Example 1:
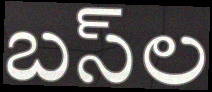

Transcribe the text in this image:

బస్‌ల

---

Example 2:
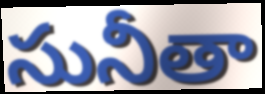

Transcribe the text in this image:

సునీతా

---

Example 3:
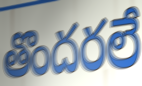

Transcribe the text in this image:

తొందరలే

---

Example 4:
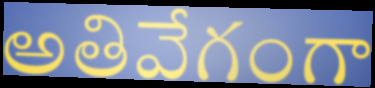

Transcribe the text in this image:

అతివేగంగా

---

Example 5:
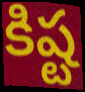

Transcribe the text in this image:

కిష్ట